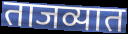
ताजव्यात